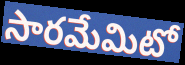
సారమేమిటో